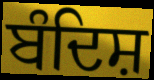
ਬੰਦਿਸ਼